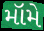
મૉમે